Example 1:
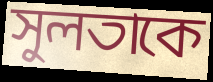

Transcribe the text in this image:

সুলতাকে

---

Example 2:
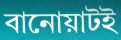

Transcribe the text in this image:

বানোয়াটই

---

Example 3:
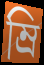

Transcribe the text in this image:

ম্রি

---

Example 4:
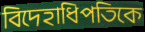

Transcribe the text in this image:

বিদেহাধিপতিকে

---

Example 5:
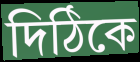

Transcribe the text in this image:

দিঠিকে